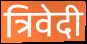
त्रिवेदी